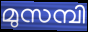
മുസമ്പി